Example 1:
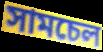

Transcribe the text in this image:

সামচেল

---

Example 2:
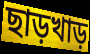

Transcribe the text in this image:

ছাড়খাড়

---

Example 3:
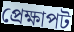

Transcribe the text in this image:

প্রেক্ষাপট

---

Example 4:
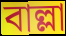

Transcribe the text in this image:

বাল্লা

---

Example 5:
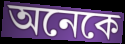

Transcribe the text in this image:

অনেকে